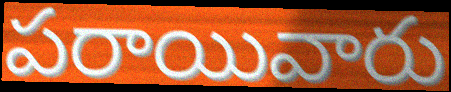
పరాయివారు